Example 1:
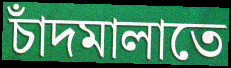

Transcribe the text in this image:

চাঁদমালাতে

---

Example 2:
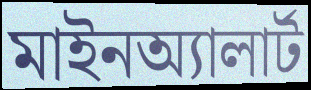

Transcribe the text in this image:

মাইনঅ্যালার্ট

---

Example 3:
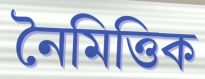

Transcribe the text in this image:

নৈমিত্তিক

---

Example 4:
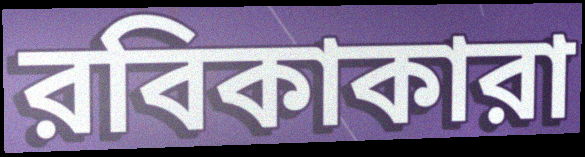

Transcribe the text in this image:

রবিকাকারা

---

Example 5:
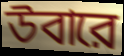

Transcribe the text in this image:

উবারে